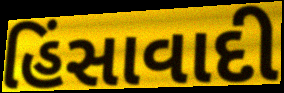
હિંસાવાદી